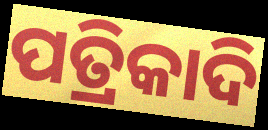
ପତ୍ରିକାଦି